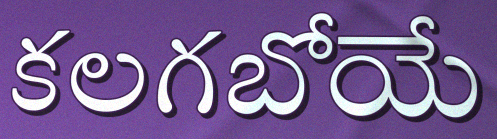
కలగబోయే